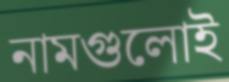
নামগুলোই